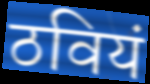
ठवियं